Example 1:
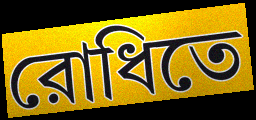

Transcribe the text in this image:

রোধিতে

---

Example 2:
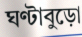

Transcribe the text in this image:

ঘণ্টাবুড়ো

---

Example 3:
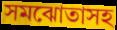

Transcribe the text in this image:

সমঝোতাসহ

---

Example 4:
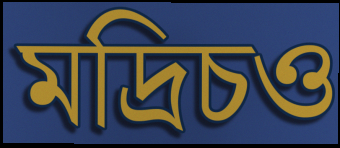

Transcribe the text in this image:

মদ্রিচও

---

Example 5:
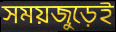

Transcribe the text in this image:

সময়জুড়েই